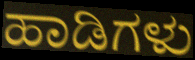
ಹಾಡಿಗಳು